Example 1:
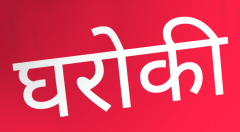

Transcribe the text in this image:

घरोकी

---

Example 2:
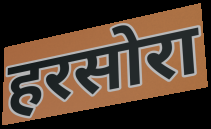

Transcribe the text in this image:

हरसोरा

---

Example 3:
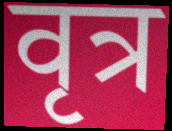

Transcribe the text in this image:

वृत्र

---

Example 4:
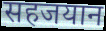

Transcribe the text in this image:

सहजयान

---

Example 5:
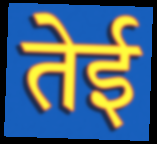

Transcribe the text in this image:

तेई